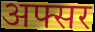
अफ्सर